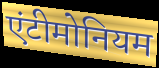
एंटीमोनियम